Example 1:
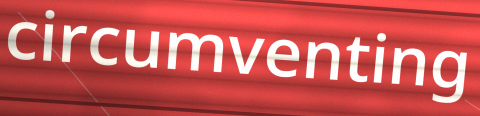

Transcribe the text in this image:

circumventing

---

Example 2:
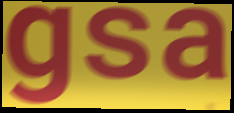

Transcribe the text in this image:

gsa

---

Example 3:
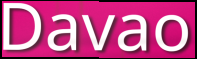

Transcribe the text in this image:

Davao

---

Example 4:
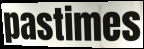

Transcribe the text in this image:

pastimes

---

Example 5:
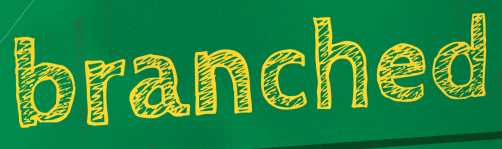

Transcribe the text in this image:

branched